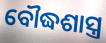
ବୌଦ୍ଧଶାସ୍ତ୍ର